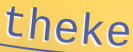
theke